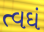
ત્વઘં